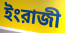
ইংরাজী